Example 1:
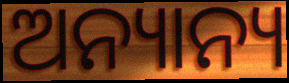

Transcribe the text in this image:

ଅନ୍ୟାନ୍ୟ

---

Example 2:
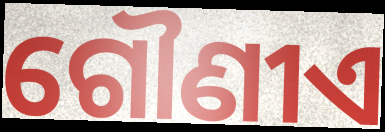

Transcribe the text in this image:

ଗୌଣୀଏ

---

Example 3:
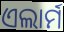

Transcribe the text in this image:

ଏଲାର୍ମ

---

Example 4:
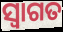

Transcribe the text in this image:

ସ୍ୱାଗତ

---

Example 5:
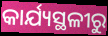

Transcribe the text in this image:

କାର୍ଯ୍ୟସ୍ଥଳୀରୁ